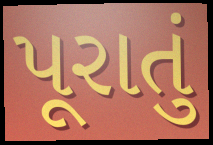
પૂરાતું